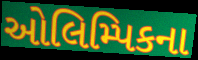
ઓલિમ્પિકના